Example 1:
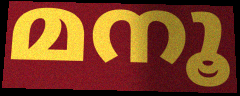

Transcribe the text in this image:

മനൂ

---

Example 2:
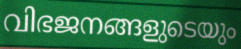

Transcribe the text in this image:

വിഭജനങ്ങളുടെയും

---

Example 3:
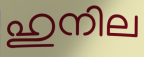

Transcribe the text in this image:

ഹുനില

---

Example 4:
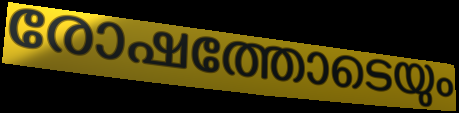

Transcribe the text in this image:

രോഷത്തോടെയും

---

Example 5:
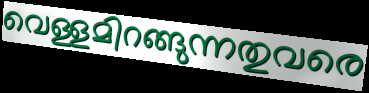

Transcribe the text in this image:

വെള്ളമിറങ്ങുന്നതുവരെ